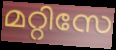
മറ്റിസേ